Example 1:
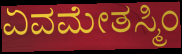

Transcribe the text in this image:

ಏವಮೇತಸ್ಮಿಂ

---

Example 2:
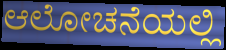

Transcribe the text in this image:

ಆಲೋಚನೆಯಲ್ಲಿ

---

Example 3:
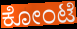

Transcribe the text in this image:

ಕೋಂಟೆ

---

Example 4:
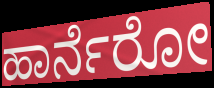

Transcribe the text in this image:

ಹಾರ್ನೆರೋ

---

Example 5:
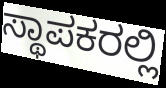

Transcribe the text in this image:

ಸ್ಥಾಪಕರಲ್ಲಿ